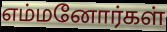
எம்மனோர்கள்